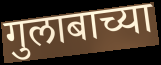
गुलाबाच्या